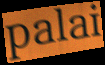
palai